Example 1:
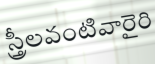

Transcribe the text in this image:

స్త్రీలవంటివారైరి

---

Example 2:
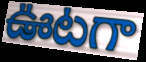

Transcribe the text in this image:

ఊటగా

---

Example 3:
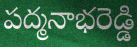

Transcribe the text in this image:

పద్మనాభరెడ్డి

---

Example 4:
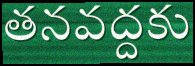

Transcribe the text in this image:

తనవద్దకు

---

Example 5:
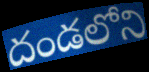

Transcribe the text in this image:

దండలోని